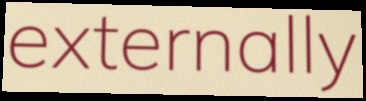
externally